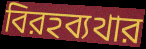
বিরহব্যথার